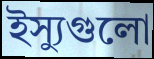
ইস্যুগুলো